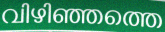
വിഴിഞ്ഞത്തെ